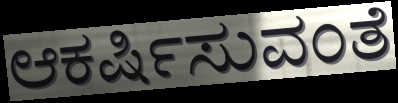
ಆಕರ್ಷಿಸುವಂತೆ